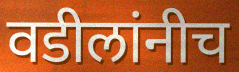
वडीलांनीच